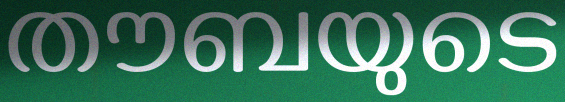
തൗബയുടെ